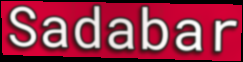
Sadabar